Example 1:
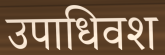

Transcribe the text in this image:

उपाधिवश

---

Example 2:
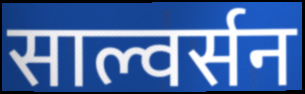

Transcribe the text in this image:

साल्वर्सन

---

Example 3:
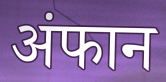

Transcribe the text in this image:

अंफान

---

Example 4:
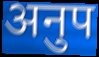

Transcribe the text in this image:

अनुप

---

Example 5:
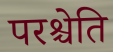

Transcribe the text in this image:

परश्चेति